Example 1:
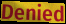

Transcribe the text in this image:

Denied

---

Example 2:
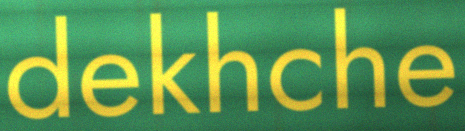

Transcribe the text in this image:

dekhche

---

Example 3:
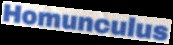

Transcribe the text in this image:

Homunculus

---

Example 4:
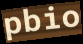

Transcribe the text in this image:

pbio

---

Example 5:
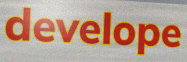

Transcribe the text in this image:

develope